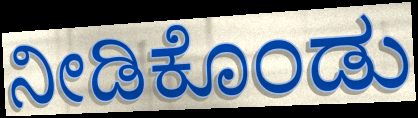
ನೀಡಿಕೊಂಡು